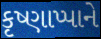
કૃષ્ણાપ્પાને